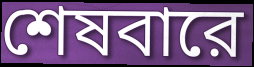
শেষবারে